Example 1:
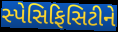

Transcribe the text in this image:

સ્પેસિફિસિટીને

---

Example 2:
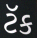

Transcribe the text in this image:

ટૅક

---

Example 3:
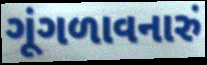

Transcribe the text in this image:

ગૂંગળાવનારું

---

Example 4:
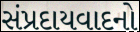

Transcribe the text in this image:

સંપ્રદાયવાદનો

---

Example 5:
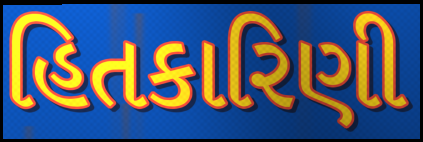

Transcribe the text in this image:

હિતકારિણી